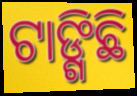
ଟାଙ୍ଗିଛି